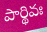
పార్థివః